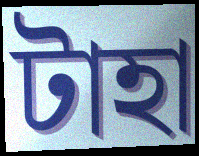
টাহা